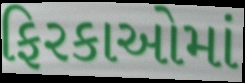
ફિરકાઓમાં